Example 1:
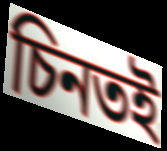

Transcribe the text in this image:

চিনতই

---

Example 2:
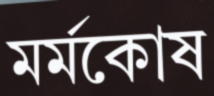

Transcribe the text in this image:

মর্মকোষ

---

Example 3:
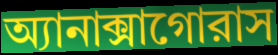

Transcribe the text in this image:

অ্যানাক্সাগোরাস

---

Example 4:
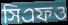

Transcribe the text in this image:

সিএফও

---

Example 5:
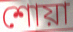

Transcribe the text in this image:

শোয়া